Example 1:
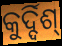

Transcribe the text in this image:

କୁର୍ଦ୍ଦିଶ୍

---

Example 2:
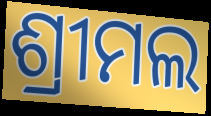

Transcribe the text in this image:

ଶ୍ରୀମଲ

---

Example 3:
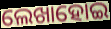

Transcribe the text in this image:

ଲେଖାହୋଇ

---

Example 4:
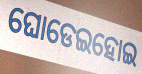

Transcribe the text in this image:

ଘୋଡେଇହୋଇ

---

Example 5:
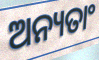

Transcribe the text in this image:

ଅନ୍ୟତାଂ